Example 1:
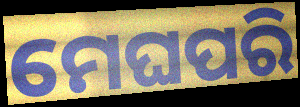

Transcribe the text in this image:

ମେଘପରି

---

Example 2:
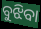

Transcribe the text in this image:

ବୁଝିବା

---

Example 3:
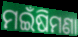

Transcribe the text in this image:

ମଇଁଷିମଣା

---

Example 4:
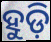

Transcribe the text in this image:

ହୁଡ଼ି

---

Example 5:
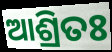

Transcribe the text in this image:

ଆଶ୍ରିତଃ